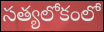
సత్యలోకంలో